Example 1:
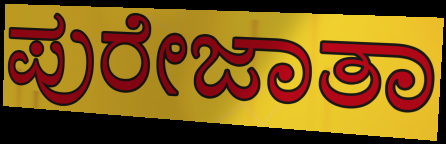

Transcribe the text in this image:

ಪುರೇಜಾತಾ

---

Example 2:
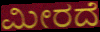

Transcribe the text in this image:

ಮೀರದೆ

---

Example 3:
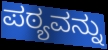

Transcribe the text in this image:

ಪಠ್ಯವನ್ನು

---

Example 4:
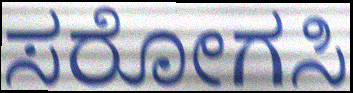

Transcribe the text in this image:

ಸರೋಗಸಿ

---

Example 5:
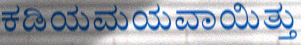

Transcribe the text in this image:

ಕಡಿಯಮಯವಾಯಿತ್ತು